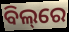
ବିଲ୍‌ରେ